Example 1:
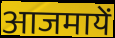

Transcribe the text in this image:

आजमायें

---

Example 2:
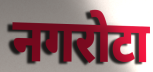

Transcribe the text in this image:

नगरोटा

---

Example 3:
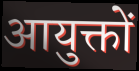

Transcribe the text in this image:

आयुक्तों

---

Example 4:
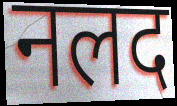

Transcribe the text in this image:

नलद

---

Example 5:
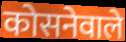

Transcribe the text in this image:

कोसनेवाले